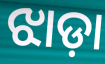
ଝାଡ଼ା